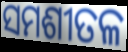
ସମଶୀତଳ